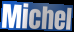
Michel